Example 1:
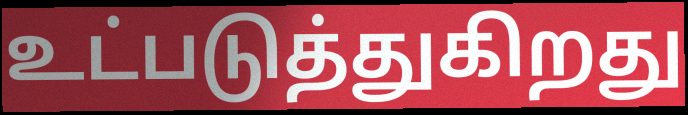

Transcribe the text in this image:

உட்படுத்துகிறது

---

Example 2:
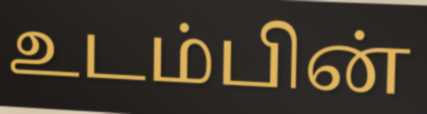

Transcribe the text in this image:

உடம்பின்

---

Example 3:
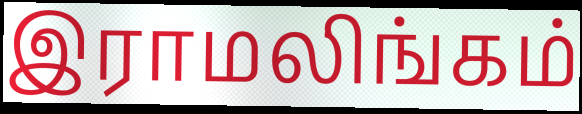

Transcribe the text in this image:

இராமலிங்கம்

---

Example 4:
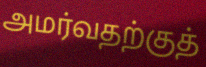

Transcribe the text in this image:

அமர்வதற்குத்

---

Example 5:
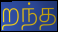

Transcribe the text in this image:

றந்த